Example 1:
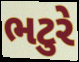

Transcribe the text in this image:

ભટુરે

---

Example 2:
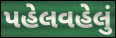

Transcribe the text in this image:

પહેલવહેલું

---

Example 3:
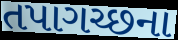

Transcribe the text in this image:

તપાગચ્છના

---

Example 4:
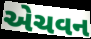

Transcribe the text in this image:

એચવન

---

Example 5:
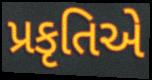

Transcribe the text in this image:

પ્રકૃતિએ